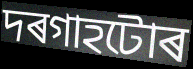
দৰগাহটোৰ